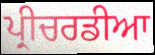
ਪ੍ਰੀਚਰਡੀਆ